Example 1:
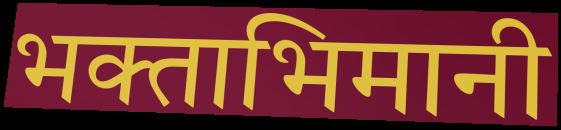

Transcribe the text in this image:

भक्ताभिमानी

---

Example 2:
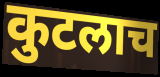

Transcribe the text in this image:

कुटलाच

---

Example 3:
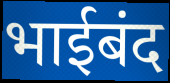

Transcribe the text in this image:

भाईबंद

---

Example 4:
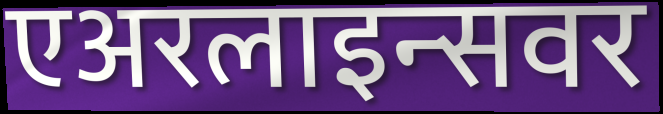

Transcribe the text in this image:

एअरलाइन्सवर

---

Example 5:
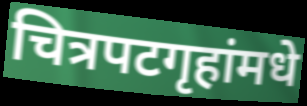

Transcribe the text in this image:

चित्रपटगृहांमधे